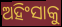
ଅହିଂସାକୁ